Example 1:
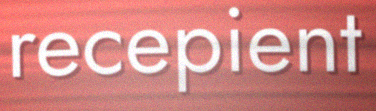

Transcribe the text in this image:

recepient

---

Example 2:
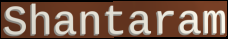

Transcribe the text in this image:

Shantaram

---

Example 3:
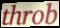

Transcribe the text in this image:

throb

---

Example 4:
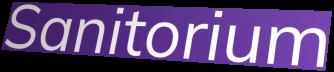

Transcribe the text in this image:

Sanitorium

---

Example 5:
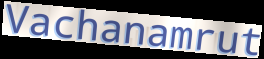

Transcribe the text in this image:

Vachanamrut